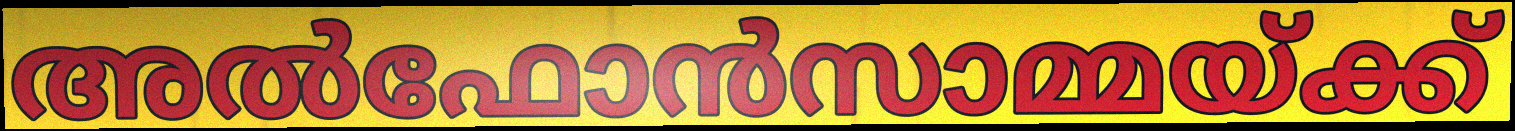
അൽഫോൻസാമ്മയ്ക്ക്